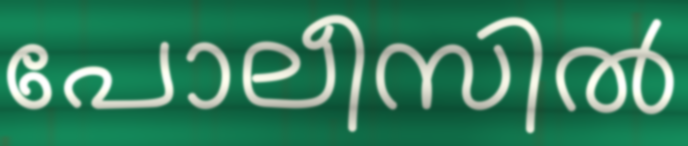
പോലീസിൽ